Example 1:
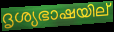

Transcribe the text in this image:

ദൃശ്യഭാഷയില്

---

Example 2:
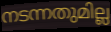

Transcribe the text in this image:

നടന്നതുമില്ല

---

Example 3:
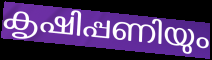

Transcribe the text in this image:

കൃഷിപ്പണിയും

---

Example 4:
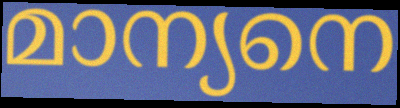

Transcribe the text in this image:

മാന്യനെ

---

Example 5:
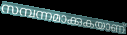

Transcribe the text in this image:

സമ്പന്നമാക്കുകയാണ്